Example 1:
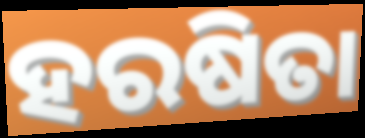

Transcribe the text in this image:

ହରଷିତା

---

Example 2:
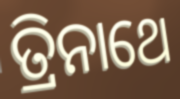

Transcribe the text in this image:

ତ୍ରିନାଥେ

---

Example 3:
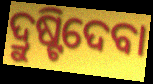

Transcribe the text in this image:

ଦ୍ରୁଷ୍ଟିଦେବା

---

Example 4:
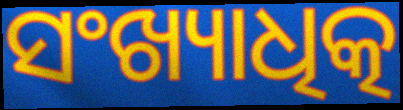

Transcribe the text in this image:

ସଂଖ୍ୟାଧିତ୍କ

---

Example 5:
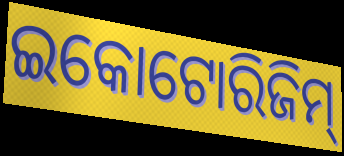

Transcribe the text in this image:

ଇକୋଟୋରିଜିମ୍